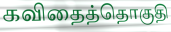
கவிதைத்தொகுதி